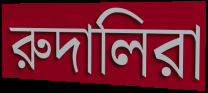
রুদালিরা